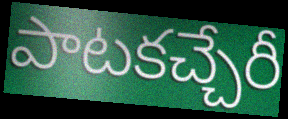
పాటకచ్చేరీ